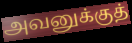
அவனுக்குத்